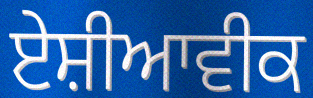
ਏਸ਼ੀਆਵੀਕ